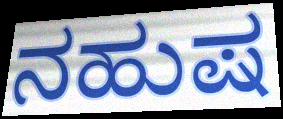
ನಹುಷ